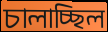
চালাচ্ছিল